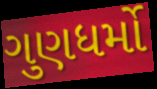
ગુણધર્મો